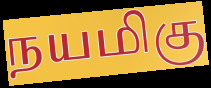
நயமிகு